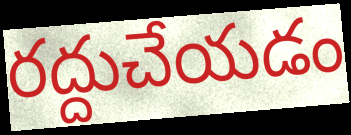
రద్దుచేయడం